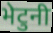
भेटुनी